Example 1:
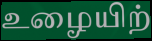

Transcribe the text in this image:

உழையிற்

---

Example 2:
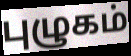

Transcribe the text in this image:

புழுகம்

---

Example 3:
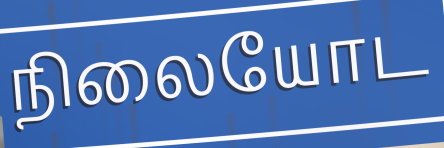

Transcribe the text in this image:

நிலையோட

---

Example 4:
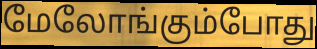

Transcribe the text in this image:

மேலோங்கும்போது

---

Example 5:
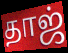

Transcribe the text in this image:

தாஜ்